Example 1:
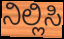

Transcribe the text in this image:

ನಿಲ್ಲಿಸಿ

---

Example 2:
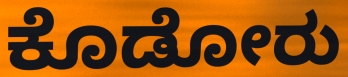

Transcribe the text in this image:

ಕೊಡೋರು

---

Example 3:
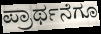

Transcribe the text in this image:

ಪ್ರಾರ್ಥನೆಗೂ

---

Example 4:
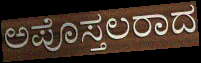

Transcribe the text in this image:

ಅಪೊಸ್ತಲರಾದ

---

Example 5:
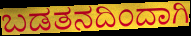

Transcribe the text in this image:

ಬಡತನದಿಂದಾಗಿ